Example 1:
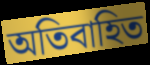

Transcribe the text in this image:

অতিবাহিত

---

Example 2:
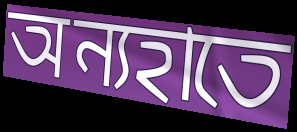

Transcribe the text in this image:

অন্যহাতে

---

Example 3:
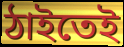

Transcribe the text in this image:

ঠাইতেই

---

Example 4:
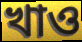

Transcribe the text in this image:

খাও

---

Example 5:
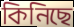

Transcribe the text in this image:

কিনিছে